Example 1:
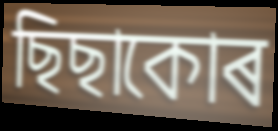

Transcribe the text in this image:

ছিছাকোৰ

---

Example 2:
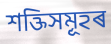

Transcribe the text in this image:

শক্তিসমূহৰ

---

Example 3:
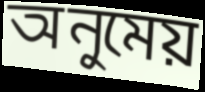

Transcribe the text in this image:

অনুমেয়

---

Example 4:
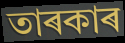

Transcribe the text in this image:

তাৰকাৰ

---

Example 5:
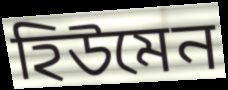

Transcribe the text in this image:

হিউমেন